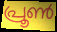
പ്രൂൺ